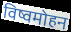
विष्वमोहन